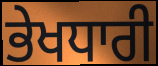
ਭੇਖਧਾਰੀ